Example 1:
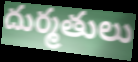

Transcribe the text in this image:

దుర్మతులు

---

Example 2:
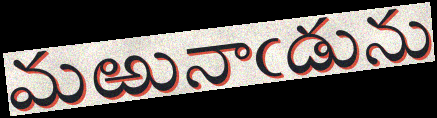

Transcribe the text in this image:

మఱునాఁడును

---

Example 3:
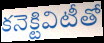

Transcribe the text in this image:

కనెక్టివిటీతో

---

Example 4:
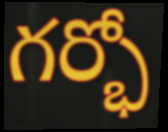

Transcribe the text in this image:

గర్భో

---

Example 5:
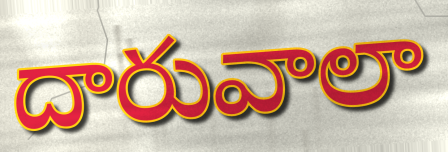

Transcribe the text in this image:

దారువాలా